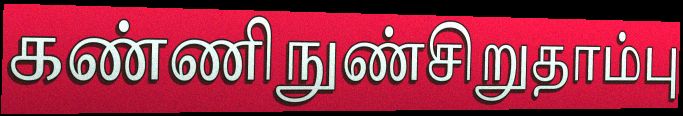
கண்ணிநுண்சிறுதாம்பு